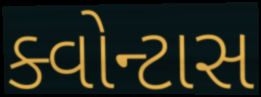
ક્વોન્ટાસ